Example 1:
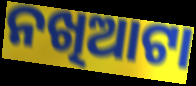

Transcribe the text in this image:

ନଖିଆଟା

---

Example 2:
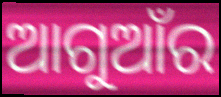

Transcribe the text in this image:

ଆଗୁଆଁର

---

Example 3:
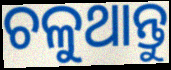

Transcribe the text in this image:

ଚଳୁଥାନ୍ତୁ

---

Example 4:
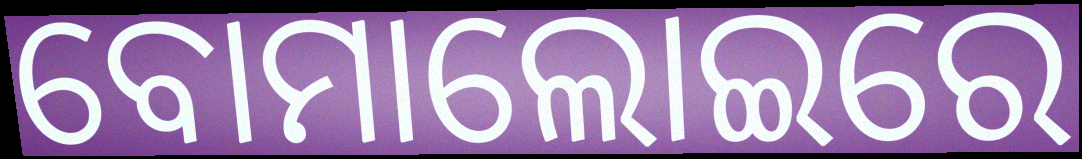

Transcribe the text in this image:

ବୋମାଲୋଇରେ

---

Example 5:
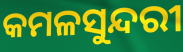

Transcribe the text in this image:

କମଳସୁନ୍ଦରୀ